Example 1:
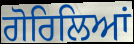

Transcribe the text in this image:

ਗੋਰਿਲਿਆਂ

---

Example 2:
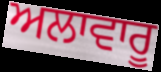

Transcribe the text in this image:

ਅਲਾਵਾਰੂ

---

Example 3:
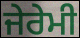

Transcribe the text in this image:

ਜੇਰੇਮੀ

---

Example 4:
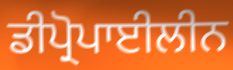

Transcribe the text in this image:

ਡੀਪ੍ਰੋਪਾਈਲੀਨ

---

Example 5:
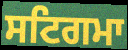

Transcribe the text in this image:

ਸਟਿਗਮਾ